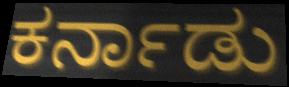
ಕರ್ನಾಡು